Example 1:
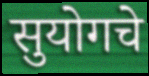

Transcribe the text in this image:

सुयोगचे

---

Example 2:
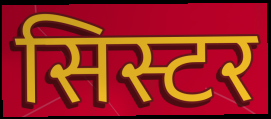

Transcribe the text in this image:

सिस्टर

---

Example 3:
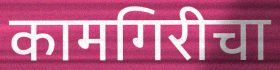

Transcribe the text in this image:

कामगिरीचा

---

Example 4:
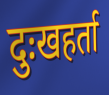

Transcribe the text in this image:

दुःखहर्ता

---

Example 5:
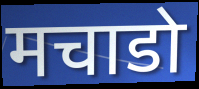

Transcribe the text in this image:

मचाडो